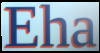
Eha